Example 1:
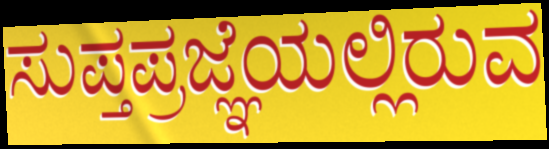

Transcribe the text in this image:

ಸುಪ್ತಪ್ರಜ್ಞೆಯಲ್ಲಿರುವ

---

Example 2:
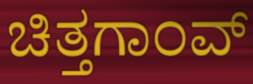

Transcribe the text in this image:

ಚಿತ್ತಗಾಂವ್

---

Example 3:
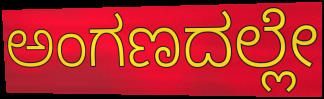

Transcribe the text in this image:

ಅಂಗಣದಲ್ಲೇ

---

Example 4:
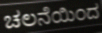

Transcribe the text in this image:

ಚಲನೆಯಿಂದ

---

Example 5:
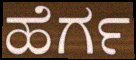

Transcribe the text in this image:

ಹೆರ್ಗ